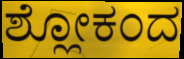
ಶ್ಲೋಕಂದ